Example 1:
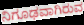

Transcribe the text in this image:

ನಿಗೂಢವಾಗಿರುವ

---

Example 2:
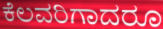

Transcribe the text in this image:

ಕೆಲವರಿಗಾದರೂ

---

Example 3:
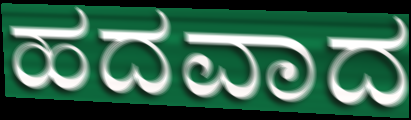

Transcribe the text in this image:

ಹದವಾದ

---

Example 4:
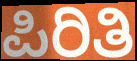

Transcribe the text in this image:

ಪಿರಿತಿ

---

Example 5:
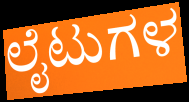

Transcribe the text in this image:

ಲೈಟುಗಳ